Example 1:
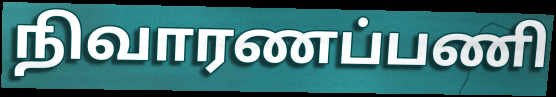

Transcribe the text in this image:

நிவாரணப்பணி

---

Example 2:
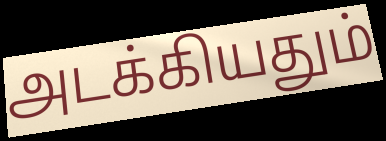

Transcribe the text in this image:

அடக்கியதும்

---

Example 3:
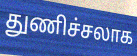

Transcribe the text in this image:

துணிச்சலாக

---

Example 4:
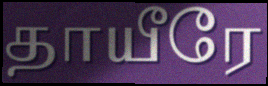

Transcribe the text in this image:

தாயீரே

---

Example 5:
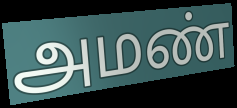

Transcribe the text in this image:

அமண்